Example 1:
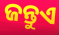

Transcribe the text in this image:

ଜନ୍ତୁଏ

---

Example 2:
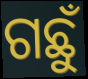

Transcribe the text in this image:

ଗଛୁଁ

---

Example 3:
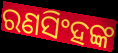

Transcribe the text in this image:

ରଣସିଂହଙ୍କ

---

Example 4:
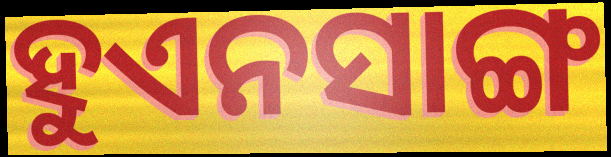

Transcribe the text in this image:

ହୁଏନସାଙ୍ଗ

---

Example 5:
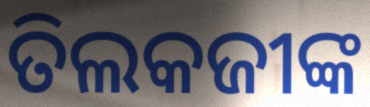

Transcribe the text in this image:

ତିଲକଜୀଙ୍କ